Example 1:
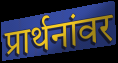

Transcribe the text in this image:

प्रार्थनांवर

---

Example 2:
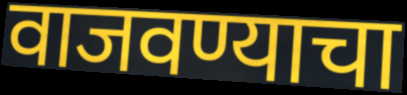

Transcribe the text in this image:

वाजवण्याचा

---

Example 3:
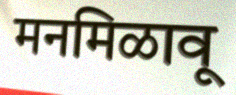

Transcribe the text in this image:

मनमिळावू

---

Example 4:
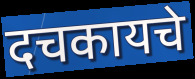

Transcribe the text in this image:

दचकायचे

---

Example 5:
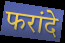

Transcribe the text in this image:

फरांदे